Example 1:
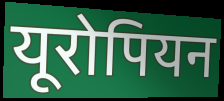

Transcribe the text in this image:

यूरोपियन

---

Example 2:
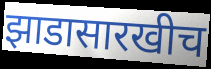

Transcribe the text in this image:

झाडासारखीच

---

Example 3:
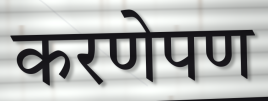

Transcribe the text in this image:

करणेपण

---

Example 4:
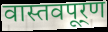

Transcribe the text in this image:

वास्तवपूर्ण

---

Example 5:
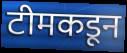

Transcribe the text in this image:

टीमकडून